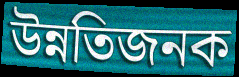
উন্নতিজনক